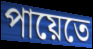
পায়েতে